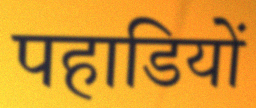
पहाडियों